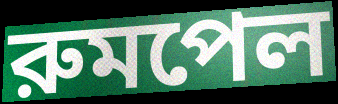
রুমপেল